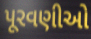
પૂરવણીઓ